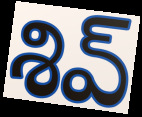
శివ్